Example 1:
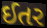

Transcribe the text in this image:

ઈતર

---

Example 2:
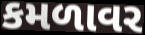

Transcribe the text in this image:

કમળાવર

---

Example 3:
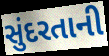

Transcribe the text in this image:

સુંદરતાની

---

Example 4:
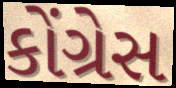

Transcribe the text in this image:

કોંગ્રેસ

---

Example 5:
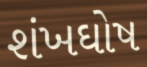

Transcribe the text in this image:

શંખઘોષ